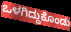
ಒಳಗಿದ್ದುಕೊಂಡು